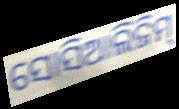
ସୋସିଆଲିଜିମ୍